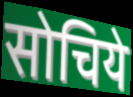
सोचिये